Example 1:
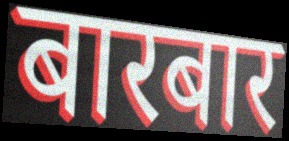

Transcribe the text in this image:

बारबार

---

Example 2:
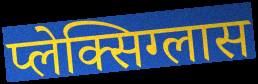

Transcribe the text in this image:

प्लेक्सिग्लास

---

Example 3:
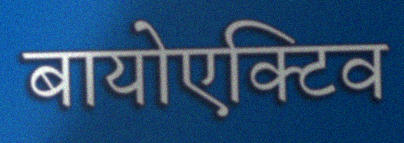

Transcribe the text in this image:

बायोएक्टिव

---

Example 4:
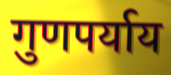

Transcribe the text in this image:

गुणपर्याय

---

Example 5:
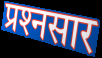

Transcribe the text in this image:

प्रश्‍नसार